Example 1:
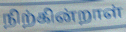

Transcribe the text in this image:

நிற்கின்றாள்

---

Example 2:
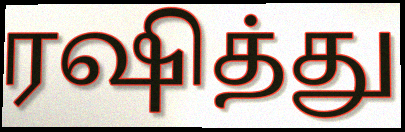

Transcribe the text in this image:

ரஷித்து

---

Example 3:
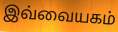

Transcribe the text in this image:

இவ்வையகம்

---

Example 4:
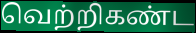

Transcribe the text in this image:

வெற்றிகண்ட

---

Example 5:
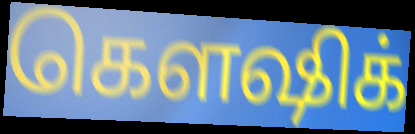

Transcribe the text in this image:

கௌஷிக்